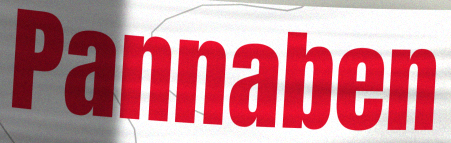
Pannaben